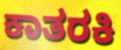
ಕಾತರಕಿ